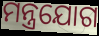
ମନ୍ତ୍ରଯୋଗ